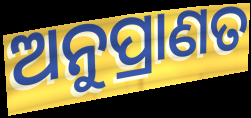
ଅନୁପ୍ରାଣତ